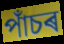
পাঁচৰ